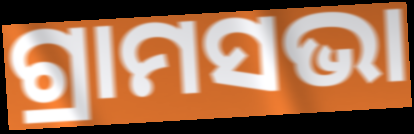
ଗ୍ରାମସଭା